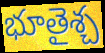
భూతైశ్చ